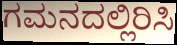
ಗಮನದಲ್ಲಿರಿಸಿ